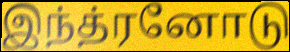
இந்த்ரனோடு